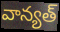
వాన్యత్